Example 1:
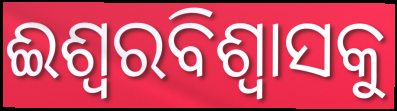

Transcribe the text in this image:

ଈଶ୍ୱରବିଶ୍ୱାସକୁ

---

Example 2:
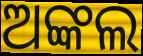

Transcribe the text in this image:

ଅଙ୍କଲ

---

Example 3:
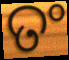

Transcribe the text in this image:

ତଂ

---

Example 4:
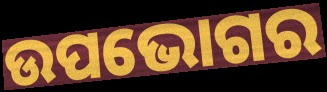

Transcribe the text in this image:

ଉପଭୋଗର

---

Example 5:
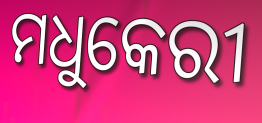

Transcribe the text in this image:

ମଧୁକେରୀ